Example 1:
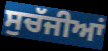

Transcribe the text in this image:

ਸੁਚੱਜੀਆਂ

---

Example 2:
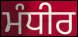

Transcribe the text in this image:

ਮੰਧੀਰ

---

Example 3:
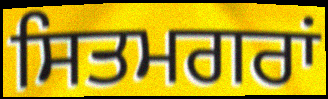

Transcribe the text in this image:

ਸਿਤਮਗਰਾਂ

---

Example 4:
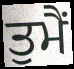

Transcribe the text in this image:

ਤੁਮੈਂ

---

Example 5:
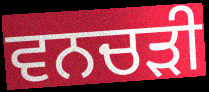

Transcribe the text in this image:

ਵਨਚੜੀ